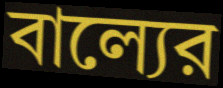
বাল্যের